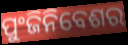
ପୁଂଜିନିବେଶର